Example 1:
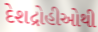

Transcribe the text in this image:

દેશદ્રોહીઓથી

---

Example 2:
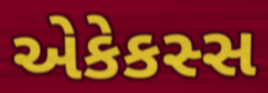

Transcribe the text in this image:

એકેકસ્સ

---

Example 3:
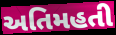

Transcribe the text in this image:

અતિમહતી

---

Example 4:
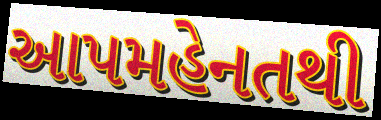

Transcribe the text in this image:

આપમહેનતથી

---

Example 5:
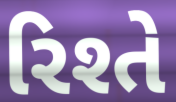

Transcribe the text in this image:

રિશ્તે